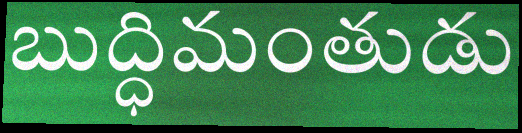
బుద్ధిమంతుడు